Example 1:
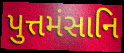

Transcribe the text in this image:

પુત્તમંસાનિ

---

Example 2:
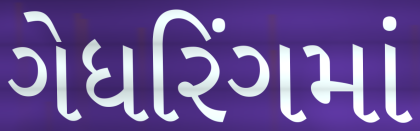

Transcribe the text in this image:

ગેધરિંગમાં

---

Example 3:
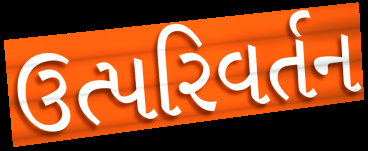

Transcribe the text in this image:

ઉત્પરિવર્તન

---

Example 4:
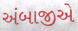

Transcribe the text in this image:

અંબાજીએ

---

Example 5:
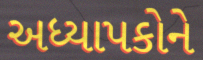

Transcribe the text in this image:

અધ્યાપકોને